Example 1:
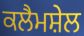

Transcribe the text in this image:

ਕਲੈਮਸ਼ੇਲ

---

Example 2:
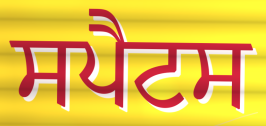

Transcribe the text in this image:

ਸਪੈਟਸ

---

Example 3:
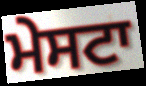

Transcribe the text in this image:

ਮੇਸਟਾ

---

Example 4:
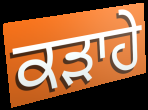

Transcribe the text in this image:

ਕੜਾਹੇ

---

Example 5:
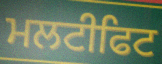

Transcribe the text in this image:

ਮਲਟੀਫਿਟ